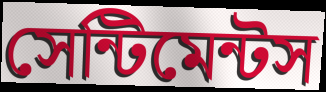
সেন্টিমেন্টস